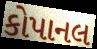
કોપાનલ